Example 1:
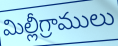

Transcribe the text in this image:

మిల్లీగ్రాములు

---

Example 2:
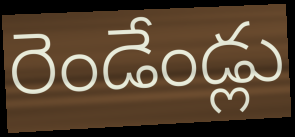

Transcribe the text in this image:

రెండేండ్లు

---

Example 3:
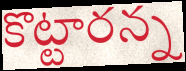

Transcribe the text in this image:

కొట్టారన్న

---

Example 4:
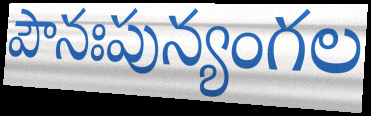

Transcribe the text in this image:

పౌనఃపున్యంగల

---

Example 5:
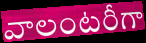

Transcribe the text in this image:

వాలంటరీగా